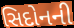
સિદોનની